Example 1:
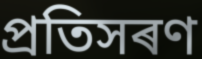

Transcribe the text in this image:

প্ৰতিসৰণ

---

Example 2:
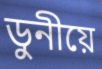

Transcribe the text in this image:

ডুনীয়ে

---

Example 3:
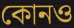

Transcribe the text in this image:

কোনও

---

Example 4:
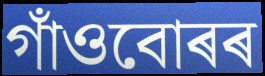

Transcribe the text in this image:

গাঁওবোৰৰ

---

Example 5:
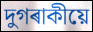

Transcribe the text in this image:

দুগৰাকীয়ে